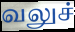
வலுச்